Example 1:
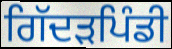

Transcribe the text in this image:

ਗਿੱਦੜਪਿੰਡੀ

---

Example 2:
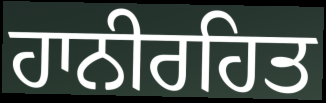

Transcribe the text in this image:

ਹਾਨੀਰਹਿਤ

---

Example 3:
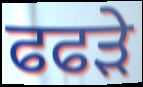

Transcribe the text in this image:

ਫਫਡ਼ੇ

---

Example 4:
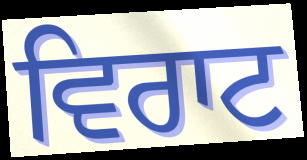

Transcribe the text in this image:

ਵਿਰਾਟ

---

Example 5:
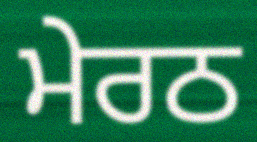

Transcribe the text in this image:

ਮੇਰਠ